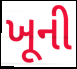
ખૂની